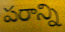
పరాన్ని